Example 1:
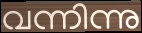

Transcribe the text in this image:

വന്നിന്നു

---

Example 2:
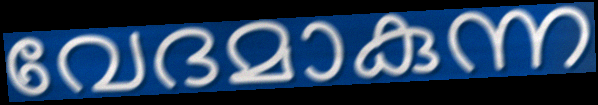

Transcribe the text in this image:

വേദമാകുന്ന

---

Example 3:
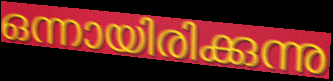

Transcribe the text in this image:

ഒന്നായിരിക്കുന്നു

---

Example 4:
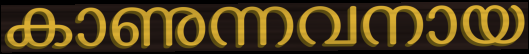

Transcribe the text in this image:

കാണുന്നവനായ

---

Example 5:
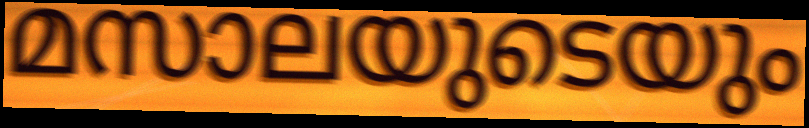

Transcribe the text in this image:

മസാലയുടെയും